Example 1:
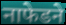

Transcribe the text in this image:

नाफेडने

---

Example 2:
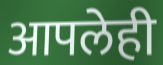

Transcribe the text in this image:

आपलेही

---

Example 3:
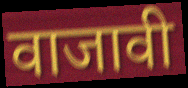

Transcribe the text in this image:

वाजावी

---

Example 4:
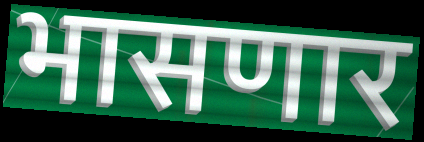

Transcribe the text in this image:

भासणार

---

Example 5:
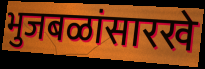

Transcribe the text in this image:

भुजबळांसारखे